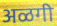
अळगी